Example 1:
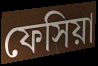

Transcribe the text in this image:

ফেসিয়া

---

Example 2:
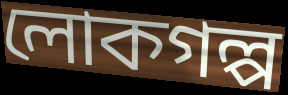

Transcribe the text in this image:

লোকগল্প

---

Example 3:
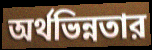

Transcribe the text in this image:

অর্থভিন্নতার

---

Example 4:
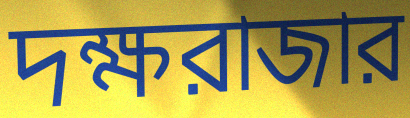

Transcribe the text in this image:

দক্ষরাজার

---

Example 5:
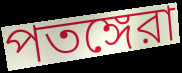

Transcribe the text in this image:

পতঙ্গেরা